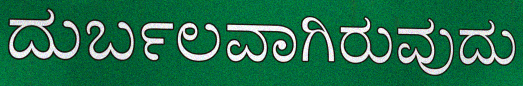
ದುರ್ಬಲವಾಗಿರುವುದು